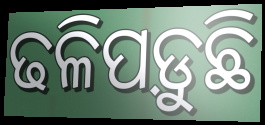
ଢଳିପଡ଼ୁଛି